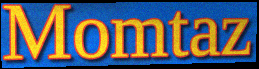
Momtaz